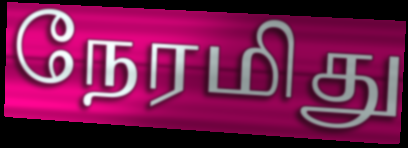
நேரமிது